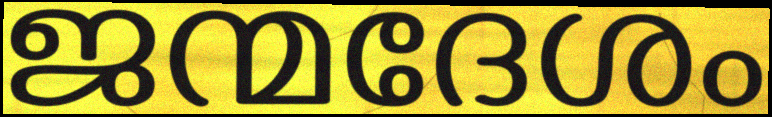
ജന്മദേശം